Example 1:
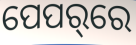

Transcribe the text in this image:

ପେପର୍‌ରେ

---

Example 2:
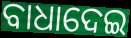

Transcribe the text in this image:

ବାଧାଦେଇ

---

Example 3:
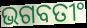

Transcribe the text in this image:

ଭଗବତୀଂ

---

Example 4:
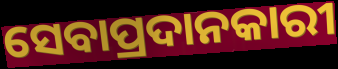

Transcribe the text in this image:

ସେବାପ୍ରଦାନକାରୀ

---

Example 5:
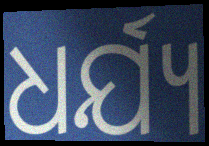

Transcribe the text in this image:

ଧର୍ଯ୍ୟ